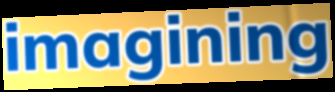
imagining